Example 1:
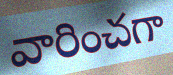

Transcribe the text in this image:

వారించగా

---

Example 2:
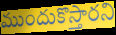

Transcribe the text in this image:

ముందుకొస్తారని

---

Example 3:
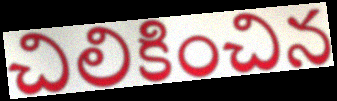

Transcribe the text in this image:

చిలికించిన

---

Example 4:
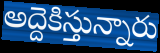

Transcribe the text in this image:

అద్దెకిస్తున్నారు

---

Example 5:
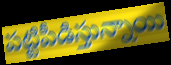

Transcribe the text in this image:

పట్టిపీడిస్తున్నాయి